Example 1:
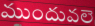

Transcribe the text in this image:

ముందువలె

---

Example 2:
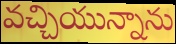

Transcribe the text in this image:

వచ్చియున్నాను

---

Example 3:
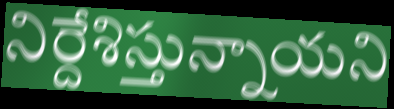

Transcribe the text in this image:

నిర్దేశిస్తున్నాయని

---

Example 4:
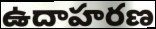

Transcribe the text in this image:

ఉదాహరణ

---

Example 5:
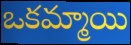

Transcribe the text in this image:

ఒకమ్మాయి